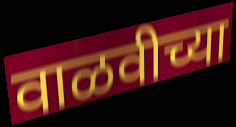
वाळवीच्या